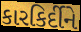
કારકિર્દીને